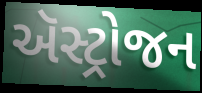
ઍસ્ટ્રોજન